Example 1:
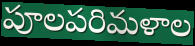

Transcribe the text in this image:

పూలపరిమళాల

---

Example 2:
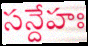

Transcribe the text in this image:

సన్దేహః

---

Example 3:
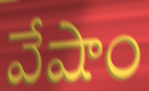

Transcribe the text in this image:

వేషాం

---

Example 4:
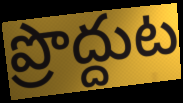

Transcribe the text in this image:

ప్రొద్దుట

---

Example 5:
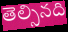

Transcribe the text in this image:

తెల్సినది